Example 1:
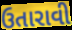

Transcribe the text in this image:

ઉતારાવી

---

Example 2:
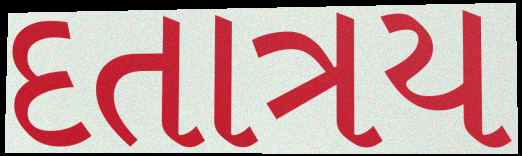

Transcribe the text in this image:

દતાત્રય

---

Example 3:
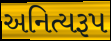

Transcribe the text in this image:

અનિત્યરૂપ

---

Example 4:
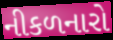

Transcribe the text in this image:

નીકળનારો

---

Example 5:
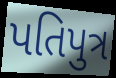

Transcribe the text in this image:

પતિપુત્ર